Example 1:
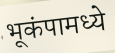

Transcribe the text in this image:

भूकंपामध्ये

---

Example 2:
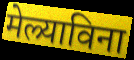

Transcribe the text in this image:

मेल्याविना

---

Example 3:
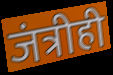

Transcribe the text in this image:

जंत्रीही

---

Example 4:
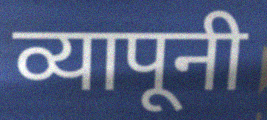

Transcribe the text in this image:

व्यापूनी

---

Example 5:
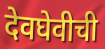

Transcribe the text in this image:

देवघेवीची